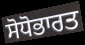
ਸੋਧੋਭਾਰਤ